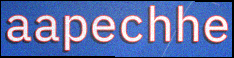
aapechhe